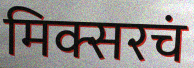
मिक्सरचं